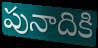
పునాదికి